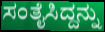
ಸಂತೈಸಿದ್ದನ್ನು